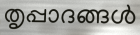
തൃപ്പാദങ്ങൾ